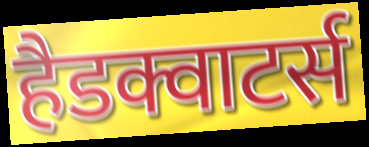
हैडक्वाटर्स